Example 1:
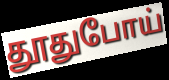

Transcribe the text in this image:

தூதுபோய்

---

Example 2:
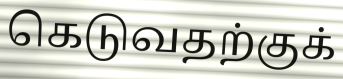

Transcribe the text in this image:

கெடுவதற்குக்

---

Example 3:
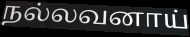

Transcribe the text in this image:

நல்லவனாய்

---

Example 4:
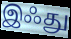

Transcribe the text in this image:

இஃது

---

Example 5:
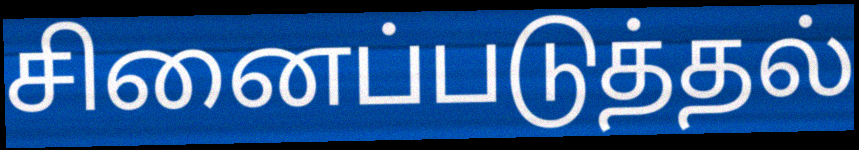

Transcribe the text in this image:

சினைப்படுத்தல்